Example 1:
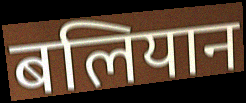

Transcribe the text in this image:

बलियान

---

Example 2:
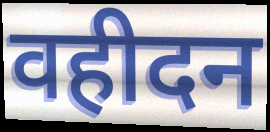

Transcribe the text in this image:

वहीदन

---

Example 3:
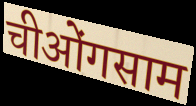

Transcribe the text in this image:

चीओंगसाम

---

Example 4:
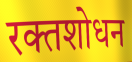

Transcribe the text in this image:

रक्तशोधन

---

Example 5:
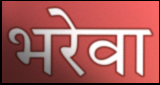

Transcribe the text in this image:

भरेवा